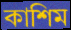
কাশিম